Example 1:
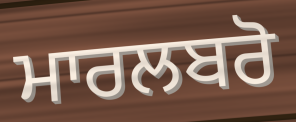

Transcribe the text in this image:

ਮਾਰਲਬਰੋ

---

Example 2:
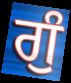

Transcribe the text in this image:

ਗੁੰ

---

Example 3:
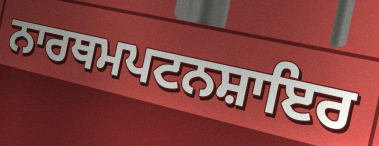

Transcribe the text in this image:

ਨਾਰਥਮਪਟਨਸ਼ਾਇਰ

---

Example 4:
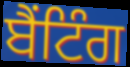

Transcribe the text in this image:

ਬੈਂਟਿੰਗ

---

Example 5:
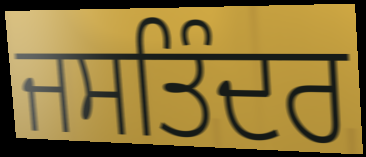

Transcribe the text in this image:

ਜਸਤਿੰਦਰ